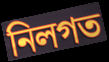
নিলগত